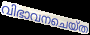
വിഭാവനചെയ്ത